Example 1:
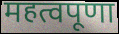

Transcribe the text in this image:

महत्वपूणा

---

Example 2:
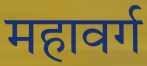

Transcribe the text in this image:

महावर्ग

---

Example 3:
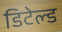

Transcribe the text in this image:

डिटेल्ड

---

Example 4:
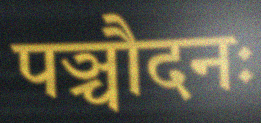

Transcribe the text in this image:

पञ्चौदनः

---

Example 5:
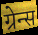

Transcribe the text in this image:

ग्रेन्स